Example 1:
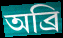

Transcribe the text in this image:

অব্ৰি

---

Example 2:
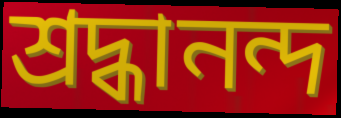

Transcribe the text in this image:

শ্ৰদ্ধানন্দ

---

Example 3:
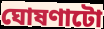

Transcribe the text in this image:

ঘোষণাটো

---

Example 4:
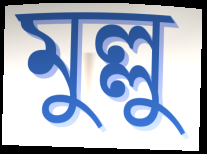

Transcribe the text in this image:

মুল্লু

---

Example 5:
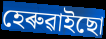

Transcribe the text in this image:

হেৰুৱাইছো